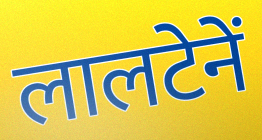
लालटेनें